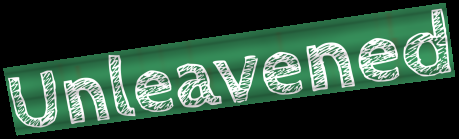
Unleavened